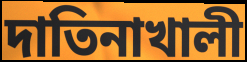
দাতিনাখালী